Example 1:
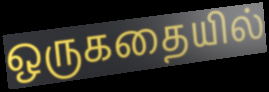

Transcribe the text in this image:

ஒருகதையில்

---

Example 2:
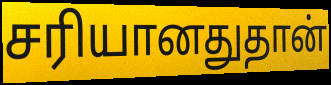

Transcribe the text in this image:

சரியானதுதான்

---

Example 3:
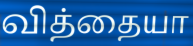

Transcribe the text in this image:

வித்தையா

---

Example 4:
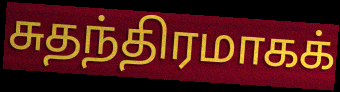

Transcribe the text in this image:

சுதந்திரமாகக்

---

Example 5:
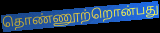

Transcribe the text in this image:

தொண்ணூற்றொன்பது